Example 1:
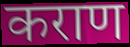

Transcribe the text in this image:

कराण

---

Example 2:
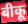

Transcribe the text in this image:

बीकू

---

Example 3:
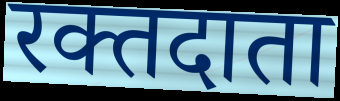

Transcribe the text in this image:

रक्तदाता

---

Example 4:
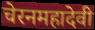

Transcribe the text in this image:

चेरनमहादेवी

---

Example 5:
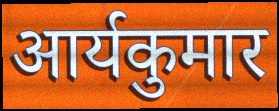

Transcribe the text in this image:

आर्यकुमार